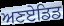
ਅਣਏਡਿਡ